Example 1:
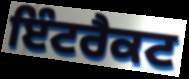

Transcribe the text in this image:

ਇੰਟਰੈਕਟ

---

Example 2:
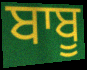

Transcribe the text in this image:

ਬਾਬੂ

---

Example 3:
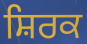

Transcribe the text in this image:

ਸ਼ਿਰਕ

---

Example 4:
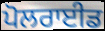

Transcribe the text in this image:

ਪੋਲਰਾਈਡ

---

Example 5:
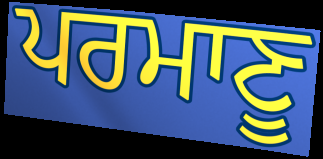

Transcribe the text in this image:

ਪਰਮਾਣੂ